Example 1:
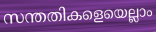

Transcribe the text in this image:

സന്തതികളെയെല്ലാം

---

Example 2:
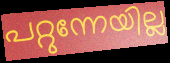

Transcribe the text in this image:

പറ്റുന്നേയില്ല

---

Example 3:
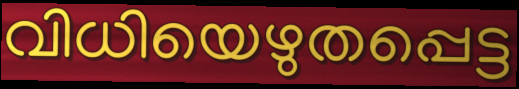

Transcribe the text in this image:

വിധിയെഴുതപ്പെട്ട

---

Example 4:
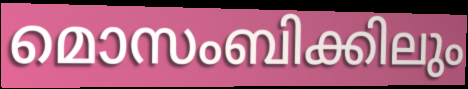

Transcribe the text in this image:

മൊസംബിക്കിലും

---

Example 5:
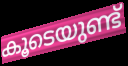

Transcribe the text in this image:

കൂടെയുണ്ട്